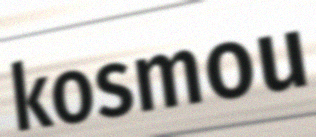
kosmou